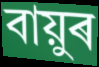
বায়ুৰ